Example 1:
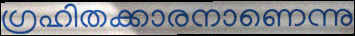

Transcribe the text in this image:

ഗ്രഹിതക്കാരനാണെന്നു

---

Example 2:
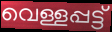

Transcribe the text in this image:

വെള്ളപ്പട്ട്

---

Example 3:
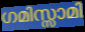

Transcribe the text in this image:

ഗമിസ്സാമി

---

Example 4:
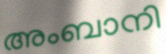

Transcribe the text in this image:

അംബാനി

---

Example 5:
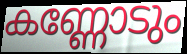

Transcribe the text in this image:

കണ്ണോടും